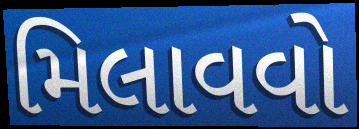
મિલાવવો